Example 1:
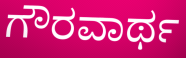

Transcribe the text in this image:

ಗೌರವಾರ್ಥ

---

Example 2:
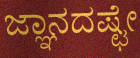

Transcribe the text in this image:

ಜ್ಞಾನದಷ್ಟೇ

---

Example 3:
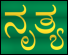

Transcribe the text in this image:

ನೃತ್ಯ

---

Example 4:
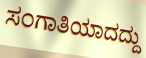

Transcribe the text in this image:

ಸಂಗಾತಿಯಾದದ್ದು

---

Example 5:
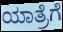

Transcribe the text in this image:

ಯಾತ್ರೆಗೆ